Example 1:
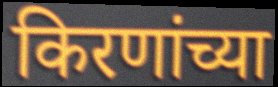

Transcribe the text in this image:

किरणांच्या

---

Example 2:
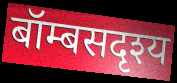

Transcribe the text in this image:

बॉम्बसदृश्य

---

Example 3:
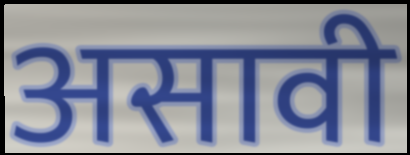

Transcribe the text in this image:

असावी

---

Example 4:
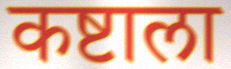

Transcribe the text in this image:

कष्टाला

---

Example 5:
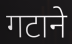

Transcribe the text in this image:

गटाने